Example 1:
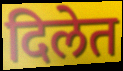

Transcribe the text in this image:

दिलेत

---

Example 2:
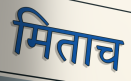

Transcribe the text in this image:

मिताच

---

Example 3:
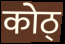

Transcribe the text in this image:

कोठ्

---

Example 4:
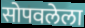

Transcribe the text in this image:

सोपवलेला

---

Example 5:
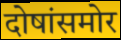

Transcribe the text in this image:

दोषांसमोर